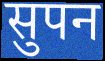
सुपन